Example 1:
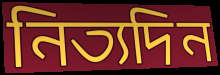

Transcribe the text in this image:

নিত্যদিন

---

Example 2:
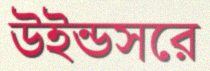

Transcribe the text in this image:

উইন্ডসরে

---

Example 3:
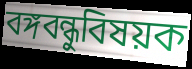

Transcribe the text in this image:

বঙ্গবন্ধুবিষয়ক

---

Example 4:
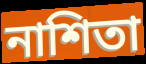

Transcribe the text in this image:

নাশিতা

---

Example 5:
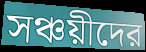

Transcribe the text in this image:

সঞ্চয়ীদের